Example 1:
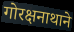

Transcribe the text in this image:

गोरक्षनाथाने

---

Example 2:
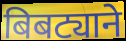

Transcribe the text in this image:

बिबट्याने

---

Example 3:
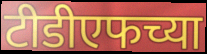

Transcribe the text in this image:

टीडीएफच्या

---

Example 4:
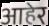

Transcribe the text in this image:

आहेर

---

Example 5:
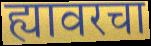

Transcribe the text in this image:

ह्यावरचा